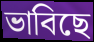
ভাবিছে